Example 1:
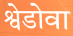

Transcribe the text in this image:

श्वेडोवा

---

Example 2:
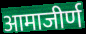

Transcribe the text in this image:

आमाजीर्ण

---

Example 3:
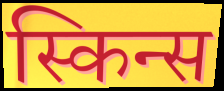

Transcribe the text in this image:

स्किन्स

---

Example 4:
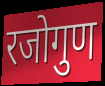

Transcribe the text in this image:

रजोगुण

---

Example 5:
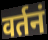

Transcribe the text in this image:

वर्तनं